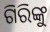
ଗିରିଙ୍କୁ